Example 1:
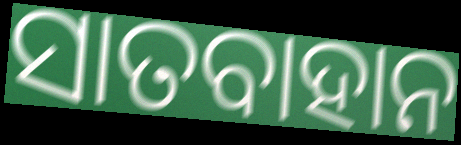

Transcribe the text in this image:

ସାତବାହାନ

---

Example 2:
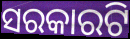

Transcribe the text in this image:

ସରକାରଟି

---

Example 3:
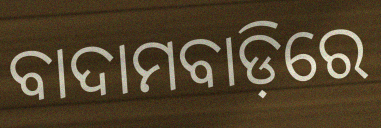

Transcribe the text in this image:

ବାଦାମବାଡ଼ିରେ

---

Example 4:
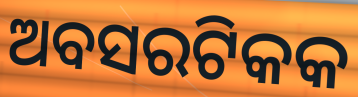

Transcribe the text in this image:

ଅବସରଟିକକ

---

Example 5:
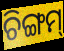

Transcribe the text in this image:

ଚିଙ୍ଗମ୍